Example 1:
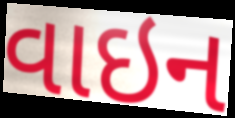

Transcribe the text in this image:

વાઇન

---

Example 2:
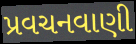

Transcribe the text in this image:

પ્રવચનવાણી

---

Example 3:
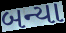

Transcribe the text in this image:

બન્યા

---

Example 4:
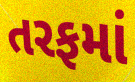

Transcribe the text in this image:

તરફમાં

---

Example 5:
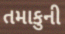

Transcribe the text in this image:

તમાકુની